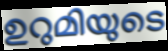
ഉറുമിയുടെ